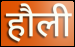
हौली